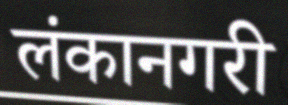
लंकानगरी